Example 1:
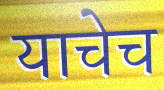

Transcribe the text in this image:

याचेच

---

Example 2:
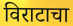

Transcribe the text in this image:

विराटाचा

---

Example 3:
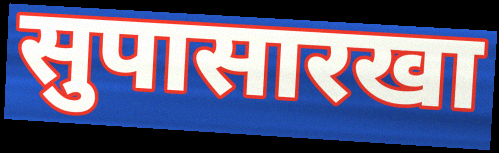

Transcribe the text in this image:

सुपासारखा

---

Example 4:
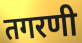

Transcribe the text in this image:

तगरणी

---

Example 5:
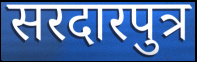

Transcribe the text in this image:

सरदारपुत्र